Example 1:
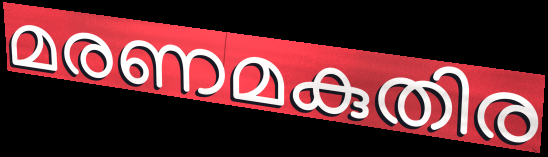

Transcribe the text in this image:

മരണമകുതിര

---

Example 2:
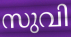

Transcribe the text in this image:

സുവി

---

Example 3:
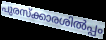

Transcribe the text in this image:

പുരസ്ക്കാരശിൽപ്പം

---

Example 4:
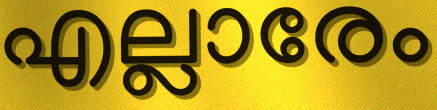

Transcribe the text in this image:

എല്ലാരേം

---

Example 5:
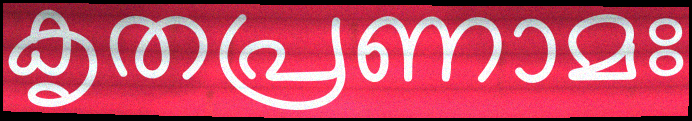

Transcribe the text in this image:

കൃതപ്രണാമഃ